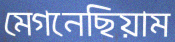
মেগনেছিয়াম